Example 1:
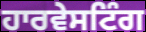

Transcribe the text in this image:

ਹਾਰਵੇਸਟਿੰਗ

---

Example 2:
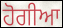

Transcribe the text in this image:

ਹੋਗੀਆ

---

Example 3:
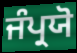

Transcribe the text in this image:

ਜੰਪ੍ਰਯੋ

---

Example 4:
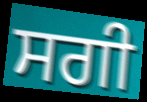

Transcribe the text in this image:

ਸਗੀ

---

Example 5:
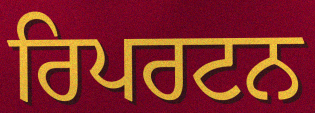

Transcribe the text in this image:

ਰਿਪਰਟਨ